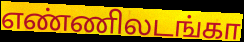
எண்ணிலடங்கா